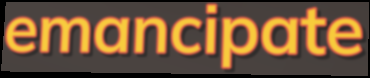
emancipate